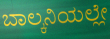
ಬಾಲ್ಕನಿಯಲ್ಲೇ